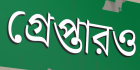
গ্রেপ্তারও